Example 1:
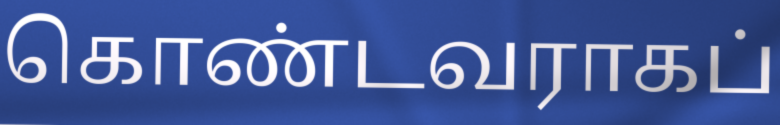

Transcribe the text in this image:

கொண்டவராகப்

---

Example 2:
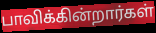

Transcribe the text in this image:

பாவிக்கின்றார்கள்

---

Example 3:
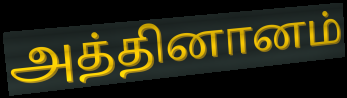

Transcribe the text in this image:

அத்தினானம்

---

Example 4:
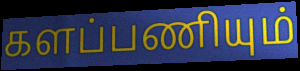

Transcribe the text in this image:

களப்பணியும்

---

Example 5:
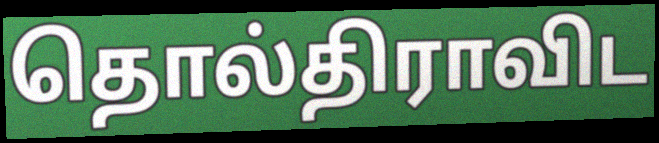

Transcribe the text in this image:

தொல்திராவிட